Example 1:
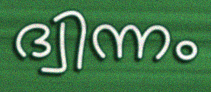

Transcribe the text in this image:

ദ്വിന്നം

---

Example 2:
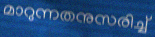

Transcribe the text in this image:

മാറുന്നതനുസരിച്ച്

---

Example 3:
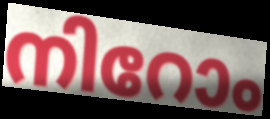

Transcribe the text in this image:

നിറോം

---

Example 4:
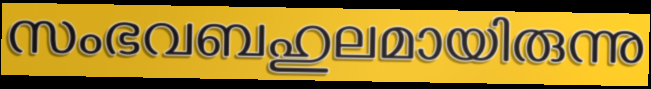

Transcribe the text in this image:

സംഭവബഹുലമായിരുന്നു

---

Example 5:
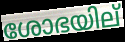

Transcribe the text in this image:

ശോഭയില്